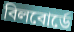
বিলবোর্ডে